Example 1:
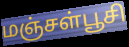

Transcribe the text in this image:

மஞ்சள்பூசி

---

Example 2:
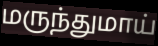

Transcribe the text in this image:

மருந்துமாய்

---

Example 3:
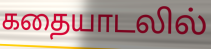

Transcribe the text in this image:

கதையாடலில்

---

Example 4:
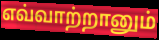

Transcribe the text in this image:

எவ்வாற்றானும்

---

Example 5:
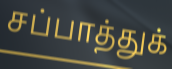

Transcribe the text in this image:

சப்பாத்துக்